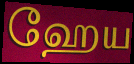
ஹேய